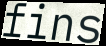
fins